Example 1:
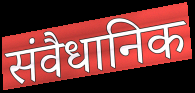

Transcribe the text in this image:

संवैधानिक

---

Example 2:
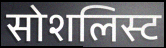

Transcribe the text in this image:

सोशलिस्ट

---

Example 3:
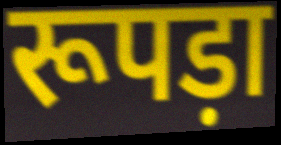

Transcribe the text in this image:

रूपड़ा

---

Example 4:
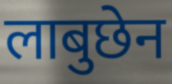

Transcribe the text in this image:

लाबुछेन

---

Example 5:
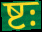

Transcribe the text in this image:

ष्टः